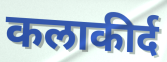
कलाकीर्द